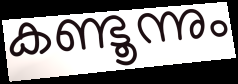
കണ്ടൂന്നും